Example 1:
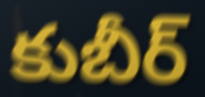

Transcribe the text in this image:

కుబీర్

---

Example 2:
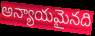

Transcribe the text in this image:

అన్యాయమైనది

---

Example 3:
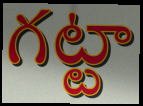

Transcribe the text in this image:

గట్టా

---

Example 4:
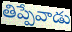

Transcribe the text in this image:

తిప్పేవాడు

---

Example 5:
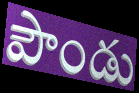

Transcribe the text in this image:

పౌండు